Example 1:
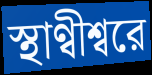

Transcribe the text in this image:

স্থাণ্বীশ্বরে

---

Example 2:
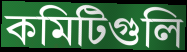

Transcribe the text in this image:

কমিটিগুলি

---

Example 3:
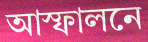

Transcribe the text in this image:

আস্ফালনে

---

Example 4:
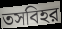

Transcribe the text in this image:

তসবিহর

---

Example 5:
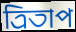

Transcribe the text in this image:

ত্রিতাপ